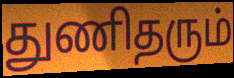
துணிதரும்